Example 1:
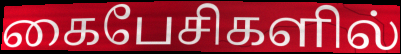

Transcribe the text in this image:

கைபேசிகளில்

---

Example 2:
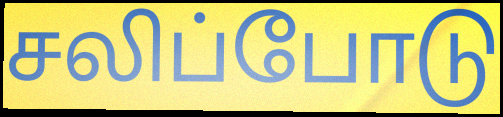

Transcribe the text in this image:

சலிப்போடு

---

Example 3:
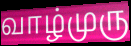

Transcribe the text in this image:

வாழ்முரு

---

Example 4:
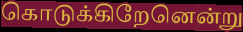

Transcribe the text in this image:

கொடுக்கிறேனென்று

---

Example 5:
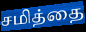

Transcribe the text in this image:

சமித்தை